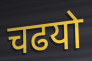
चढयो